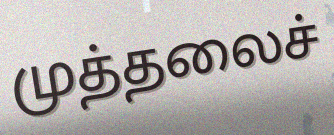
முத்தலைச்